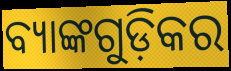
ବ୍ୟାଙ୍କଗୁଡ଼ିକର